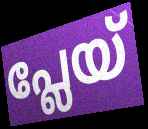
പ്ലേയ്